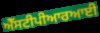
ਐੱਸਟੀਪੀਆਰਆਈ